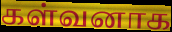
கள்வனாக